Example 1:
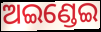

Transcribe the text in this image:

ଅଇଣ୍ଡେଇ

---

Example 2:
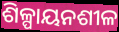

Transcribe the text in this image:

ଶିଳ୍ପାୟନଶୀଳ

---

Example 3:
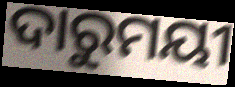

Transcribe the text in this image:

ଦାରୁମୟୀ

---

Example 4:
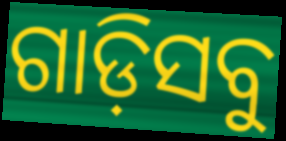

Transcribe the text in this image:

ଗାଡ଼ିସବୁ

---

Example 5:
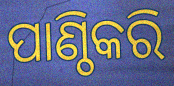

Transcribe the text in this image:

ପାଣ୍ଠିକରି